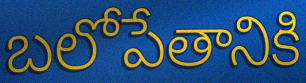
బలోపేతానికి